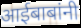
आईबाबांनी